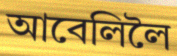
আবেলিলৈ